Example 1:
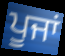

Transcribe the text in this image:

ਪੂਜਾਂ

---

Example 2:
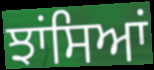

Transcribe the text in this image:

ਝਾਂਸਿਆਂ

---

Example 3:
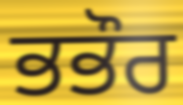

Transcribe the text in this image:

ਭਭੌਰ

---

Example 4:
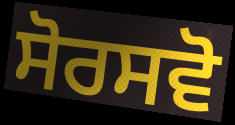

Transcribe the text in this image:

ਸੋਰਸਵੋ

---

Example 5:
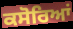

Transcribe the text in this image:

ਕਸੋਰਿਆਂ